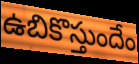
ఉబికొస్తుందేం